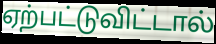
ஏற்பட்டுவிட்டால்